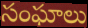
సంఘాలు